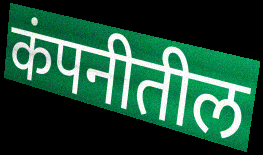
कंपनीतील